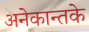
अनेकान्तके